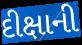
દીક્ષાની